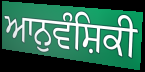
ਆਨੁਵੰਸ਼ਿਕੀ